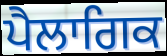
ਪੈਲਾਗਿਕ